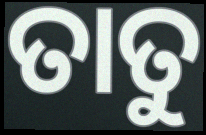
ତାତୁ